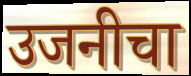
उजनीचा